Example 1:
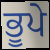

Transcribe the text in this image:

ਭੂਪੇ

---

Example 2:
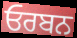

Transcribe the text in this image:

ਓਰਬਨ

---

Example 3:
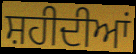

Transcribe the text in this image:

ਸ਼ਹੀਦੀਆਂ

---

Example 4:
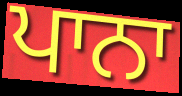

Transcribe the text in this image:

ਪਾਨਾ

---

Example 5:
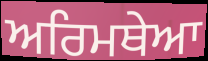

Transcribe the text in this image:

ਅਰਿਮਥੇਆ